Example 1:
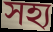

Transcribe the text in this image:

সহ্য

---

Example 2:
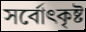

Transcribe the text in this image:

সৰ্বোৎকৃষ্ট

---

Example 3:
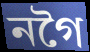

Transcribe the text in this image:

নগৈ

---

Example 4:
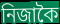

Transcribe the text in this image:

নিজাকৈ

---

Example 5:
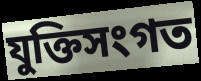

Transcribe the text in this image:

যুক্তিসংগত